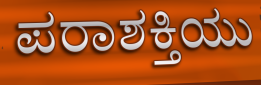
ಪರಾಶಕ್ತಿಯು